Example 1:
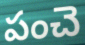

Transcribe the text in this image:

పంచె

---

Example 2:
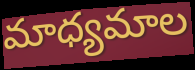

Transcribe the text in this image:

మాధ్యమాల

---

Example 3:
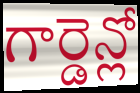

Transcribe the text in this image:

గార్డెన్లో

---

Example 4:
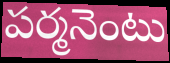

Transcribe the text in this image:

పర్మనెంటు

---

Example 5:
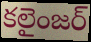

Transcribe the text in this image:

కలైంజర్